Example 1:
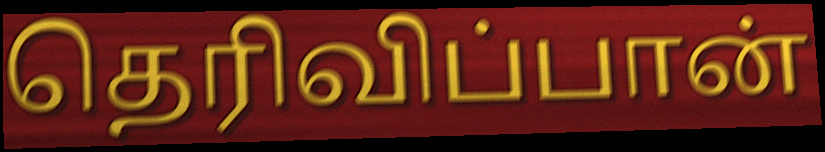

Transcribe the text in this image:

தெரிவிப்பான்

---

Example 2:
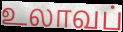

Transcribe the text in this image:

உலாவப்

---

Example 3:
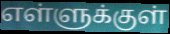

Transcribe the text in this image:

எள்ளுக்குள்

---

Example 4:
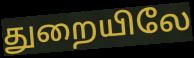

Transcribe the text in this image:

துறையிலே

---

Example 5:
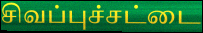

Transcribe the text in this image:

சிவப்புச்சட்டை